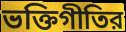
ভক্তিগীতির